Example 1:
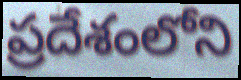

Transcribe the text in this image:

ప్రదేశంలోని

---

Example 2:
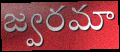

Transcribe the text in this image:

జ్వరమా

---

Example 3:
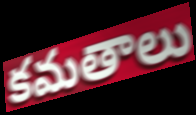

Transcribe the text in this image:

కమతాలు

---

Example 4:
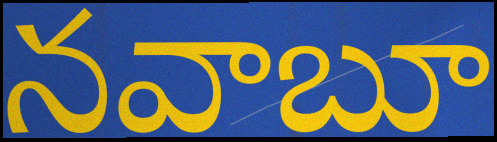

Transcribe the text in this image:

నవాబూ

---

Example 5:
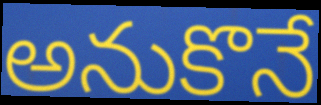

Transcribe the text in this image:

అనుకొనే